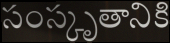
సంస్కృతానికి